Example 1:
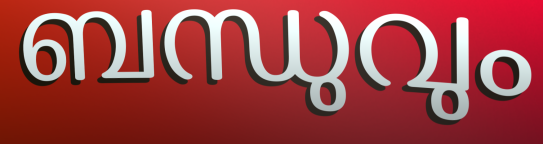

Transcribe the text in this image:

ബന്ധുവും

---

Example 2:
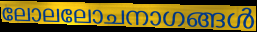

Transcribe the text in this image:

ലോലലോചനാഗങ്ങൾ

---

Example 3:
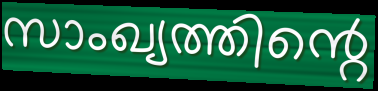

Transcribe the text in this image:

സാംഖ്യത്തിന്റെ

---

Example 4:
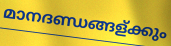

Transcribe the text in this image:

മാനദണ്ഡങ്ങള്ക്കും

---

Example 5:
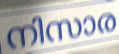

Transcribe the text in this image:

നിസാര